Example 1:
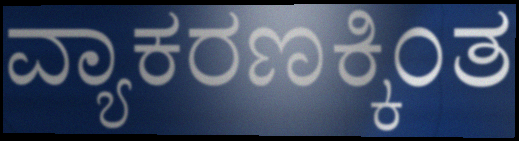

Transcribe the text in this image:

ವ್ಯಾಕರಣಕ್ಕಿಂತ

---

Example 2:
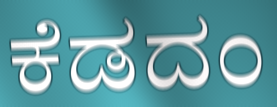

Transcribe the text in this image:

ಕೆಡದಂ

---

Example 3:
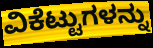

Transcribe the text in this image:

ವಿಕೆಟ್ಟುಗಳನ್ನು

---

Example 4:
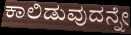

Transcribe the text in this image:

ಕಾಲಿಡುವುದನ್ನೇ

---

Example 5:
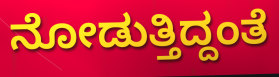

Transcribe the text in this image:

ನೋಡುತ್ತಿದ್ದಂತೆ